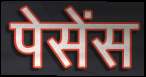
पेसेंस